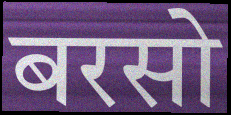
बरसो